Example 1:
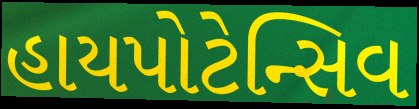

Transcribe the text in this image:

હાયપોટેન્સિવ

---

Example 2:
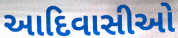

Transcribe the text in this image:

આદિવાસીઓ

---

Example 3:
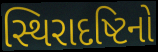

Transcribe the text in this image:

સ્થિરાદષ્ટિનો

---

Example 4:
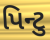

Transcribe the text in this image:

પિન્ટુ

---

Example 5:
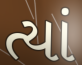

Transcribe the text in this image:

ત્યાં